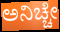
ಅನಿಚ್ಚೇ